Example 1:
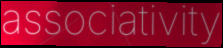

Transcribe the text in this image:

associativity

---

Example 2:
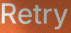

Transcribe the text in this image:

Retry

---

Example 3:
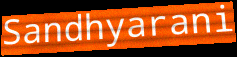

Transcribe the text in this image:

Sandhyarani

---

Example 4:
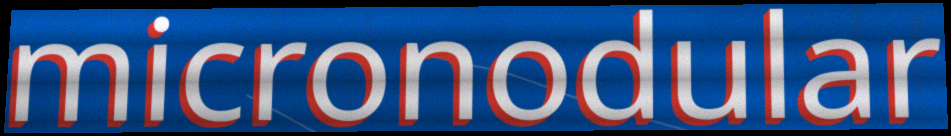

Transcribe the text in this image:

micronodular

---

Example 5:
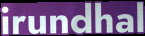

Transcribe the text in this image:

irundhal